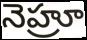
నెహ్రూ